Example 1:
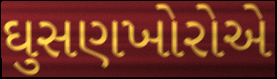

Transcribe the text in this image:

ઘુસણખોરોએ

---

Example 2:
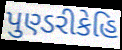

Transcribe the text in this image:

પુણ્ડરીકેહિ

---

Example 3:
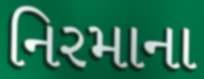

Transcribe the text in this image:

નિરમાના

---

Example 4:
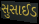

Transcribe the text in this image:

સુસાઈડ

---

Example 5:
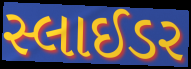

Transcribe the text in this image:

સ્લાઈડર